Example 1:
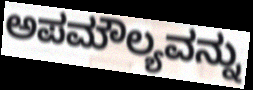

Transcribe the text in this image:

ಅಪಮೌಲ್ಯವನ್ನು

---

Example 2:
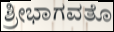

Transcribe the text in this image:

ಶ್ರೀಭಾಗವತೊ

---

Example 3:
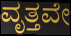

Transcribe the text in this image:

ವೃತ್ತವೇ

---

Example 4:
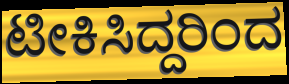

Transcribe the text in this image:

ಟೀಕಿಸಿದ್ದರಿಂದ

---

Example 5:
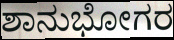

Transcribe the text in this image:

ಶಾನುಭೋಗರ